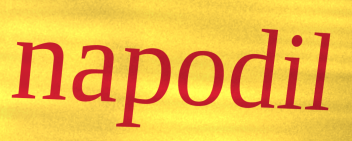
napodil